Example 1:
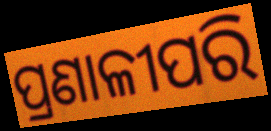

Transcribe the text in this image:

ପ୍ରଣାଳୀପରି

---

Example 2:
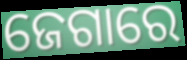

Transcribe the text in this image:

ଜେଗାରେ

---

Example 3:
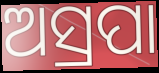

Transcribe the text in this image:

ଅସ୍ରପା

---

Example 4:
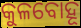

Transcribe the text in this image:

କୁଳବୋହୂ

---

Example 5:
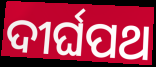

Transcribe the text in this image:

ଦୀର୍ଘପଥ